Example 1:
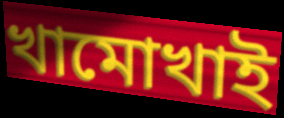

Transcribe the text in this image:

খামোখাই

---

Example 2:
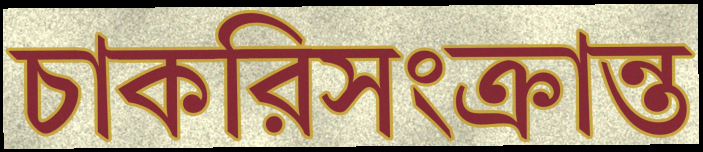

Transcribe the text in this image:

চাকরিসংক্রান্ত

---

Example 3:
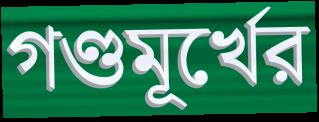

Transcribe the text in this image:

গণ্ডমূর্খের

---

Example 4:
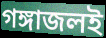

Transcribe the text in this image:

গঙ্গাজলই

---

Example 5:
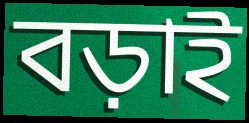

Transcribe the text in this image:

বড়াই